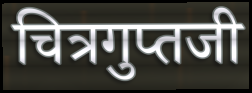
चित्रगुप्तजी